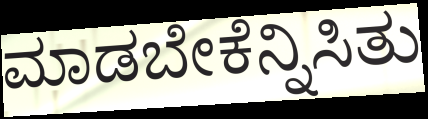
ಮಾಡಬೇಕೆನ್ನಿಸಿತು